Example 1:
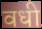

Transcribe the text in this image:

वधी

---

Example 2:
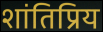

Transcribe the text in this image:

शांतिप्रिय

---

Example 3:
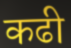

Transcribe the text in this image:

कढी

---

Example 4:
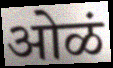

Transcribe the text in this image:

ओळं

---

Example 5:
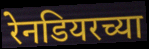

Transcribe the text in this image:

रेनडियरच्या